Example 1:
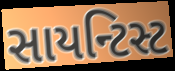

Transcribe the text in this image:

સાયન્ટિસ્ટ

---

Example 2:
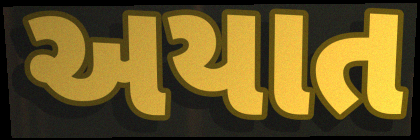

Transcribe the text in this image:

અયાત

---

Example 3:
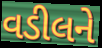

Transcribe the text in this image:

વડીલને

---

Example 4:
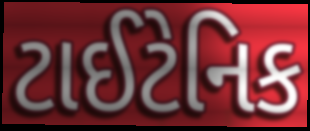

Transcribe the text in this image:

ટાઈટેનિક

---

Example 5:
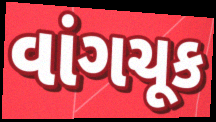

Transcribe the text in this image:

વાંગચૂક